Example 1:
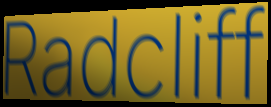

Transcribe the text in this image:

Radcliff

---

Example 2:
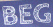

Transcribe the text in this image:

BEG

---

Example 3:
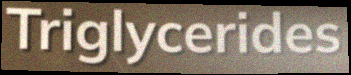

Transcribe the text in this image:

Triglycerides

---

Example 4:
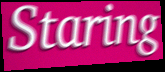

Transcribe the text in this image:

Staring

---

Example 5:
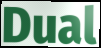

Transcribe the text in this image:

Dual